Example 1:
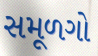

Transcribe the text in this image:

સમૂળગો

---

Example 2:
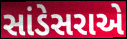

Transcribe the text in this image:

સાંડેસરાએ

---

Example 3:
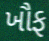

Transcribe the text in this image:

ખૌફ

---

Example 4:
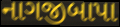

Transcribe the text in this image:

નાગજીબાપા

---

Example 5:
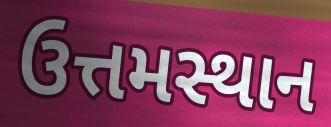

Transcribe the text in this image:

ઉત્તમસ્થાન